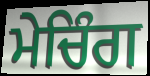
ਮੇਚਿੰਗ